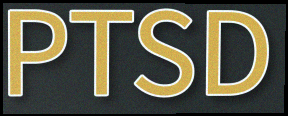
PTSD